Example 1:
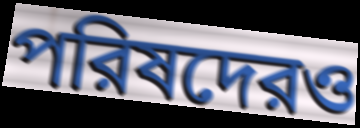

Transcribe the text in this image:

পরিষদেরও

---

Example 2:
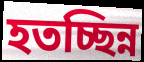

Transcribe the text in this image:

হতচ্ছিন্ন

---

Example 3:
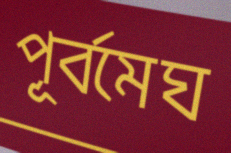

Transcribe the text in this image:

পূর্বমেঘ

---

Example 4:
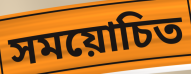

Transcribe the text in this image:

সময়োচিত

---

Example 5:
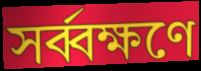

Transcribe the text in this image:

সর্ব্বক্ষণে